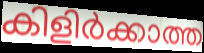
കിളിർക്കാത്ത